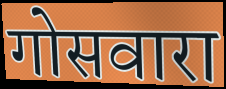
गोसवारा